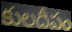
కులదీపం